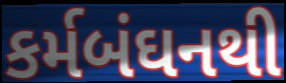
કર્મબંઘનથી